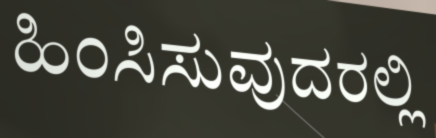
ಹಿಂಸಿಸುವುದರಲ್ಲಿ